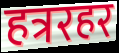
हत्ररहर